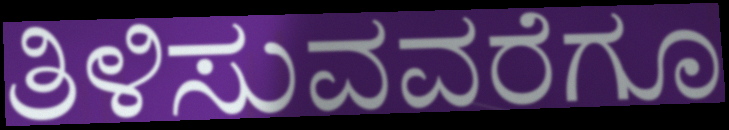
ತಿಳಿಸುವವರೆಗೂ